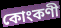
কোংকণী